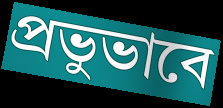
প্রভুভাবে